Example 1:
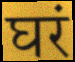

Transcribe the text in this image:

घरं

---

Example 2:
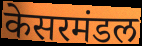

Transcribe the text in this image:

केसरमंडल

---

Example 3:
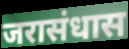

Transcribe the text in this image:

जरासंधास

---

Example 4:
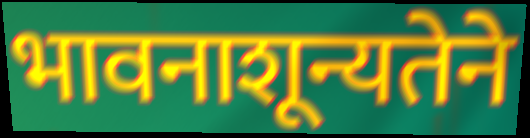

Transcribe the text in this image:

भावनाशून्यतेने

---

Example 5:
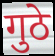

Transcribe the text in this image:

गुठे